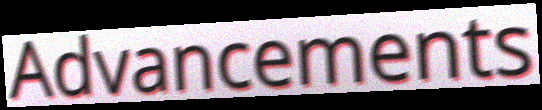
Advancements